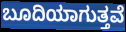
ಬೂದಿಯಾಗುತ್ತವೆ